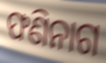
ଫଣିନାଗ